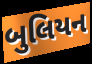
બુલિયન